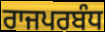
ਰਾਜਪਰਬੰਧ